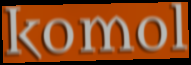
komol